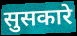
सुसकारे